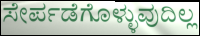
ಸೇರ್ಪಡೆಗೊಳ್ಳುವುದಿಲ್ಲ